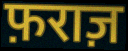
फ़राज़